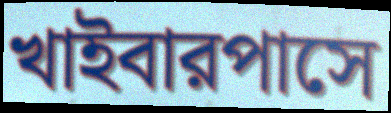
খাইবারপাসে